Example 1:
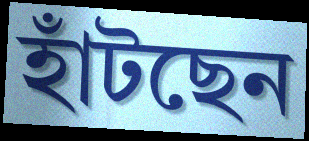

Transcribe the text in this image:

হাঁটছেন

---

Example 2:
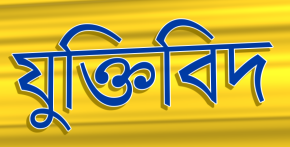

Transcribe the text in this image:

যুক্তিবিদ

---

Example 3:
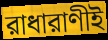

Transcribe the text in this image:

রাধারাণীই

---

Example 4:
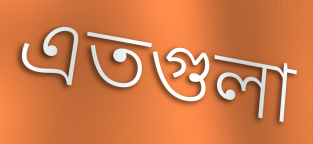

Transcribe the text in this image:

এতগুলা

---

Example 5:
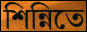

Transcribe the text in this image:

শিন্নিতে